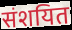
संशयित